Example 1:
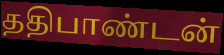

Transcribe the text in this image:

ததிபாண்டன்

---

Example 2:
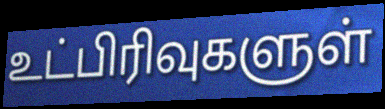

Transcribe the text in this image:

உட்பிரிவுகளுள்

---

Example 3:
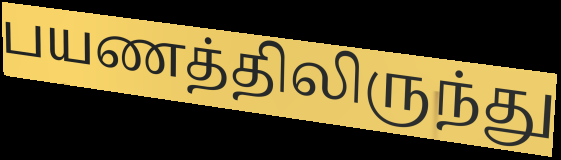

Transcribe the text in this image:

பயணத்திலிருந்து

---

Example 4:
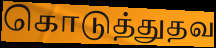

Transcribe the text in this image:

கொடுத்துதவ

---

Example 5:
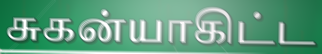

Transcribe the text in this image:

சுகன்யாகிட்ட